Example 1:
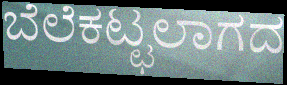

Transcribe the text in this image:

ಬೆಲೆಕಟ್ಟಲಾಗದ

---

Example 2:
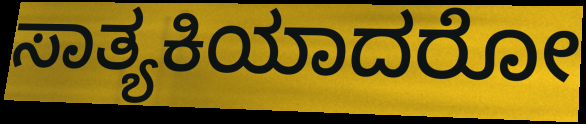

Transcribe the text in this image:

ಸಾತ್ಯಕಿಯಾದರೋ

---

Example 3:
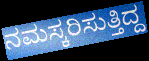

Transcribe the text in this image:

ನಮಸ್ಕರಿಸುತ್ತಿದ್ದ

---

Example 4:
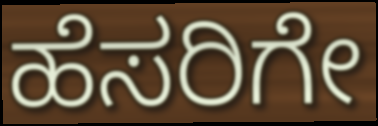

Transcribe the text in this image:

ಹೆಸರಿಗೇ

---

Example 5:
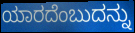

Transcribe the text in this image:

ಯಾರದೆಂಬುದನ್ನು